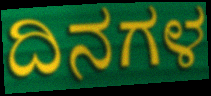
ದಿನಗಳ